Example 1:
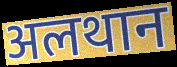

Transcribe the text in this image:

अलथान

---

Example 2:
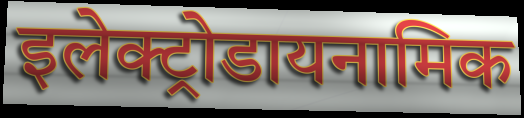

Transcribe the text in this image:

इलेक्ट्रोडायनामिक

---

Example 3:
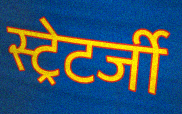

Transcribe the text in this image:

स्ट्रेटर्जी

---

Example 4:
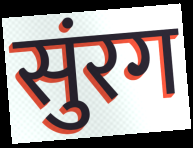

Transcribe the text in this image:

सुंरग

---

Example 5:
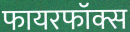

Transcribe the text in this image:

फायरफॉक्स